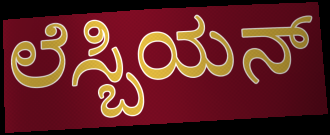
ಲೆಸ್ಬಿಯನ್